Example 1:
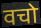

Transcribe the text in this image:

वचो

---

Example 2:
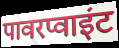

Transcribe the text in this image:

पावरप्वाइंट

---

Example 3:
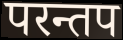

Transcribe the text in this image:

परन्तप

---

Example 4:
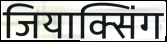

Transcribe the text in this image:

जियाक्सिंग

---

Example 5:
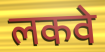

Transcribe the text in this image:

लकवे